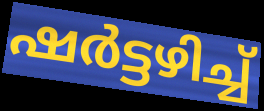
ഷർട്ടഴിച്ച്